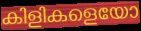
കിളികളെയോ